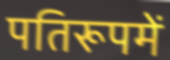
पतिरूपमें